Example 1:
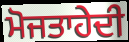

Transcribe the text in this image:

ਮੋਜਤਾਹੇਦੀ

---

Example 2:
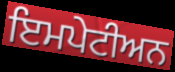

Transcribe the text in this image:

ਇਮਪੇਟੀਅਨ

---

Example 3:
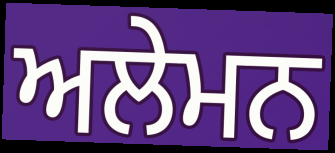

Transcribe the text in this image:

ਅਲੇਮਨ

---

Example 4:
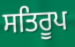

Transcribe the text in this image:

ਸਤਿਰੂਪ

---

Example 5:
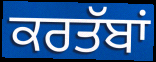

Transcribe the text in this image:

ਕਰਤੱਬਾਂ